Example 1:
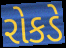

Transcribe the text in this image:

રોકડે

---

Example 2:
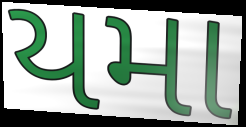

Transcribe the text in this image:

યમા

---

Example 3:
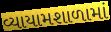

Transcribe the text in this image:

વ્યાયામશાળામાં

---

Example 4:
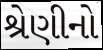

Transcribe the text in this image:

શ્રેણીનો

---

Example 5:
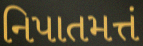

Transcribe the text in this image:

નિપાતમત્તં